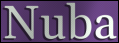
Nuba